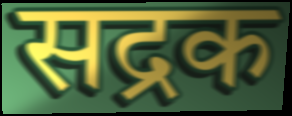
सद्रक